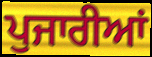
ਪੁਜਾਰੀਆਂ